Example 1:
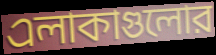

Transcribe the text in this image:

এলাকাগুলোর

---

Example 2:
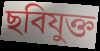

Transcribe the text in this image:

ছবিযুক্ত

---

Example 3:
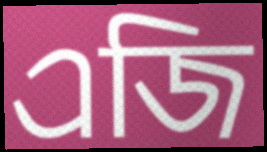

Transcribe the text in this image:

এজি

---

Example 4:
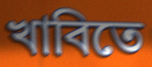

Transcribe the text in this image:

খাবিতে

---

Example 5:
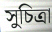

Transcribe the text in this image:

সুচিত্রা